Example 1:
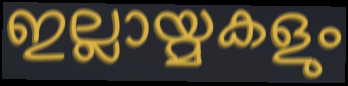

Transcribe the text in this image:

ഇല്ലായ്മകളും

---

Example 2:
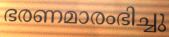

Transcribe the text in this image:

ഭരണമാരംഭിച്ചു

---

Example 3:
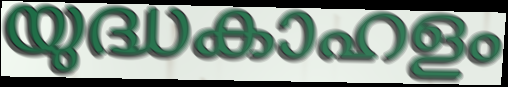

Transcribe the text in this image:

യുദ്ധകാഹളം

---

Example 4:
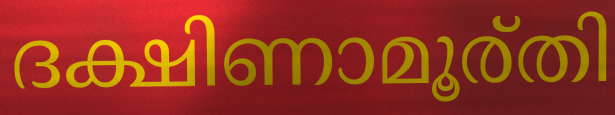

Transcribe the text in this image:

ദക്ഷിണാമൂര്തി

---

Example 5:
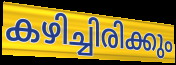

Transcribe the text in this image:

കഴിച്ചിരിക്കും